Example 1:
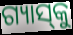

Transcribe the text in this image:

ଗ୍ୟାସ୍‌କୁ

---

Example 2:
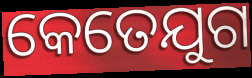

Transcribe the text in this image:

କେତେଯୁଗ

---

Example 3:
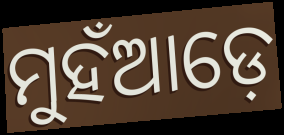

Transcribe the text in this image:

ମୁହଁଆଡ଼େ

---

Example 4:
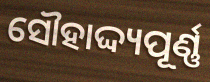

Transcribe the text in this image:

ସୌହାଦ୍ଦ୍ୟପୂର୍ଣ୍ଣ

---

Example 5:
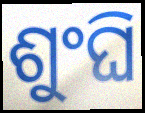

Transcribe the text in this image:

ଶୁଂଘି